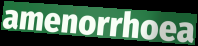
amenorrhoea